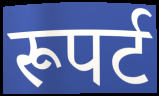
रूपर्ट